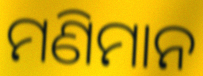
ମଣିମାନ